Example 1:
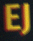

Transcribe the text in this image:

EJ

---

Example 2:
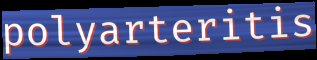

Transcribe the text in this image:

polyarteritis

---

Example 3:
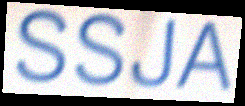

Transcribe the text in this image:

SSJA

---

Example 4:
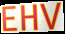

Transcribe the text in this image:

EHV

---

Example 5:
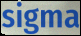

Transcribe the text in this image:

sigma